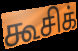
கூசிக்